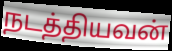
நடத்தியவன்